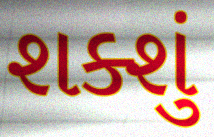
શક્શું